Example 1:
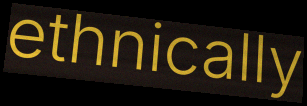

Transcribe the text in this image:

ethnically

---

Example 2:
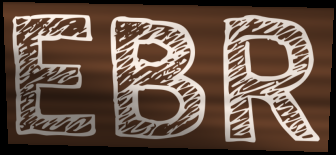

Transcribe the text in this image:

EBR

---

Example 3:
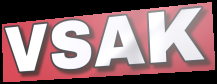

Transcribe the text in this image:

VSAK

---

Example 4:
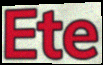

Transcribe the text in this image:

Ete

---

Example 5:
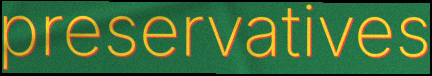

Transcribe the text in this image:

preservatives